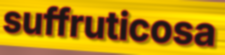
suffruticosa